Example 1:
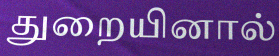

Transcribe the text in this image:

துறையினால்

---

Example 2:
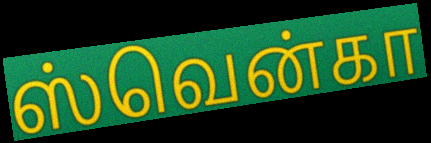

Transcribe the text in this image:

ஸ்வென்கா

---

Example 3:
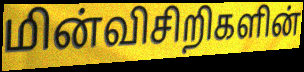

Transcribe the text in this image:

மின்விசிறிகளின்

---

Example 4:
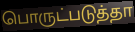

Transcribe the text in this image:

பொருட்படுத்தா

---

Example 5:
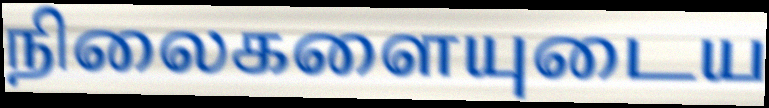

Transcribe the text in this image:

நிலைகளையுடைய